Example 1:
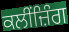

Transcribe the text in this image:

ਕਲੀਂਜ਼ਿੰਗ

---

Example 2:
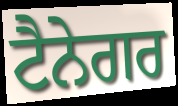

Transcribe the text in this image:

ਟੈਨੇਗਰ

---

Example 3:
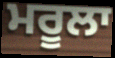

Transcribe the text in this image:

ਮਰੂਲਾ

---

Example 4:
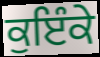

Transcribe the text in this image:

ਕੁਇੰਕੇ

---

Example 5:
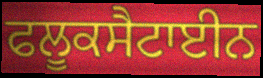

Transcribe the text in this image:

ਫਲੂਕਸੈਟਾਈਨ